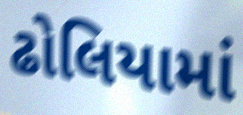
ઢોલિયામાં